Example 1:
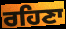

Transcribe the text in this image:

ਰਹਿਣਾ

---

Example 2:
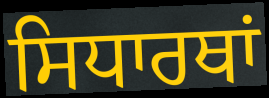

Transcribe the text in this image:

ਸਿਧਾਰਥਾਂ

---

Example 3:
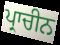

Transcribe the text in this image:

ਪ੍ਰਾਚੀਨ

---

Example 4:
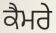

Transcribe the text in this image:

ਕੈਮਰੇ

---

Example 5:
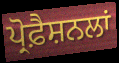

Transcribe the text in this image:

ਪ੍ਰੋਫ਼ੈਸ਼ਨਲਾਂ